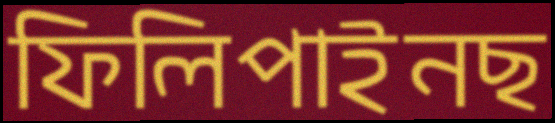
ফিলিপাইনছ